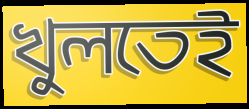
খুলতেই